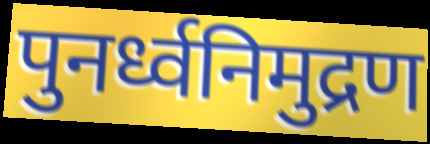
पुनर्ध्वनिमुद्रण